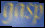
gasp